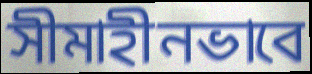
সীমাহীনভাবে